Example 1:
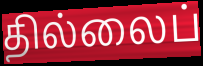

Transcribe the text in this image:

தில்லைப்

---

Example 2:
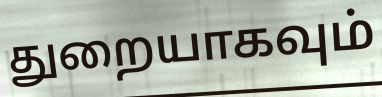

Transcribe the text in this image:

துறையாகவும்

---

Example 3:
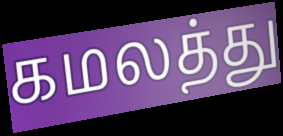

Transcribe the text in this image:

கமலத்து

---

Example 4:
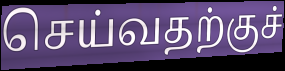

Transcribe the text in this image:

செய்வதற்குச்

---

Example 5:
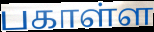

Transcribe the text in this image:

பகாள்ள